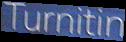
Turnitin